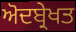
ਅੋਦਬ੍ਰੇਖਤ